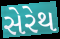
સેરેથ